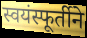
स्वयंस्फूर्तीने